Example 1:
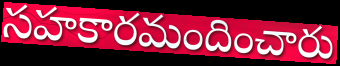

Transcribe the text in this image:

సహకారమందించారు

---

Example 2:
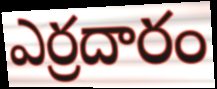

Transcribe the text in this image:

ఎర్రదారం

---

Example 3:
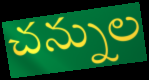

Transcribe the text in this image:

చన్నుల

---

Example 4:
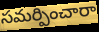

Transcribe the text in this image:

సమర్పించారా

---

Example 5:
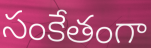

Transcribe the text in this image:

సంకేతంగా